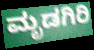
ಮೃಡಗಿರಿ